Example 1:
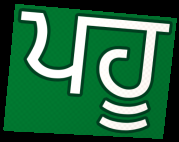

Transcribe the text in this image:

ਪਹੂ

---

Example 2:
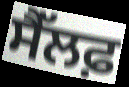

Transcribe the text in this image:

ਸੈੱਲਫ਼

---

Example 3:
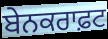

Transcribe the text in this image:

ਬੇਨਕਰਾਫ਼ਟ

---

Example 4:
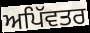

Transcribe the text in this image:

ਅਪਿੱਵਤਰ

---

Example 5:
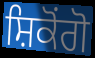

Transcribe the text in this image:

ਸ਼ਿਕੋਂਗੋ